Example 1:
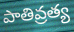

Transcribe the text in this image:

పాతివ్రత్య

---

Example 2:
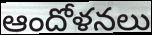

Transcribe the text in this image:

ఆందోళనలు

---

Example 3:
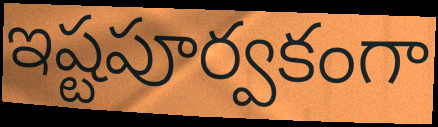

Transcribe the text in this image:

ఇష్టపూర్వకంగా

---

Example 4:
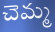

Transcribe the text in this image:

చెమ్మ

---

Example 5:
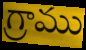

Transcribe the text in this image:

గ్రాము